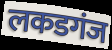
लकडगंज